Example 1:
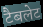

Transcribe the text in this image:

टैबलेट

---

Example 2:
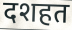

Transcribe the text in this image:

दशहत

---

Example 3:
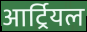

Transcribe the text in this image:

आर्ट्रियल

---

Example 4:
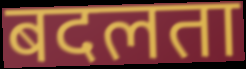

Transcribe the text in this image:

बदलता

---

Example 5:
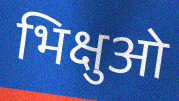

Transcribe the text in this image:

भिक्षुओ